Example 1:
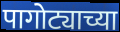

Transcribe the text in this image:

पागोट्याच्या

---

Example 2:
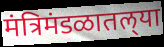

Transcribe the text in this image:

मंत्रिमंडळातल्या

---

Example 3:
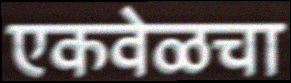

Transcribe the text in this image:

एकवेळचा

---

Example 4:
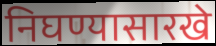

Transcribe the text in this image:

निघण्यासारखे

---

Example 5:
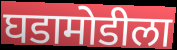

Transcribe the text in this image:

घडामोडीला